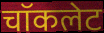
चॉकलेट